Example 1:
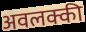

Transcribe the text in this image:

अवलक्की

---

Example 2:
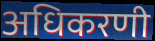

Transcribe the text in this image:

अधिकरणी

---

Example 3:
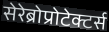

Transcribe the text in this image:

सेरेब्रोप्रोटेक्टर्स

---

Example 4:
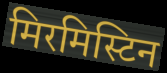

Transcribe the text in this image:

मिरमिस्टिन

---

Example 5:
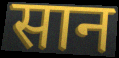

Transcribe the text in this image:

सान